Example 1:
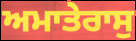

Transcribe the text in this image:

ਅਮਾਤੇਰਾਸੁ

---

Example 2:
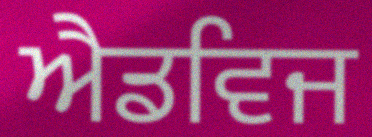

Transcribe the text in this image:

ਐਡਵਿਜ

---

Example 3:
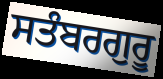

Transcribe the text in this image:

ਸਤੰਬਰਗੁਰੂ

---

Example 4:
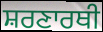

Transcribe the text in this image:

ਸ਼ਰਣਾਰਥੀ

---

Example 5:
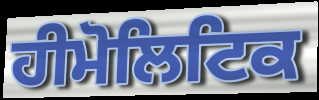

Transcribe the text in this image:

ਹੀਮੋਲਿਟਿਕ